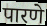
पारणे